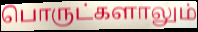
பொருட்களாலும்